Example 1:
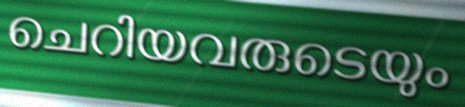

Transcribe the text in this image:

ചെറിയവരുടെയും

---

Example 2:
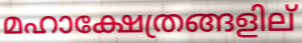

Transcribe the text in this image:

മഹാക്ഷേത്രങ്ങളില്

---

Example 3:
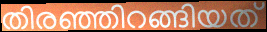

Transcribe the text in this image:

തിരഞ്ഞിറങ്ങിയത്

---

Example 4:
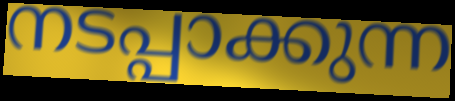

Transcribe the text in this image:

നടപ്പാക്കുന്ന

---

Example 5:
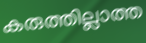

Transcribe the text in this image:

കരുത്തില്ലാത്ത